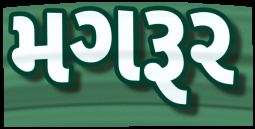
મગરૂર